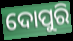
ଦୋପୁରି